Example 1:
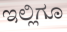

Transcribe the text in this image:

ಇಲ್ಲಿಗೂ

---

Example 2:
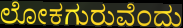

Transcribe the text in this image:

ಲೋಕಗುರುವೆಂದು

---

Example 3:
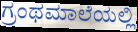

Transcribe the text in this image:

ಗ್ರಂಥಮಾಲೆಯಲ್ಲಿ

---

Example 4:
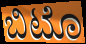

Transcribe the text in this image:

ಬಿಟೊ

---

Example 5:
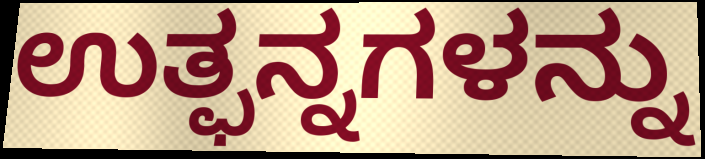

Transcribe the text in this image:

ಉತ್ಫನ್ನಗಳನ್ನು